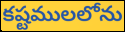
కష్టములలోను